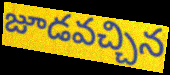
జూడవచ్చిన